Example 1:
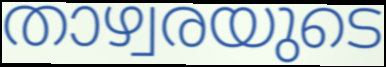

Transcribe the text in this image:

താഴ്വരയുടെ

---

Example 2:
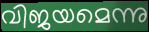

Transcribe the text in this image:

വിജയമെന്നു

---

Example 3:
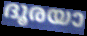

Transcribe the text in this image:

ദൂരയാ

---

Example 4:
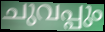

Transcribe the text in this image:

ചുവപ്പും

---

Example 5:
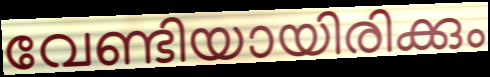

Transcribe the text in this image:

വേണ്ടിയായിരിക്കും